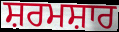
ਸ਼ਰਮਸ਼ਾਰ